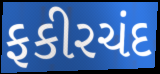
ફકીરચંદ